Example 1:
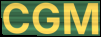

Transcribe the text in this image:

CGM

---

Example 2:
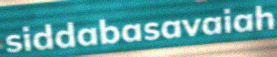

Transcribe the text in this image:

siddabasavaiah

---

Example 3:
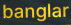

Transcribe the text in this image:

banglar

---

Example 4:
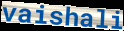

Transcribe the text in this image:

vaishali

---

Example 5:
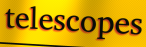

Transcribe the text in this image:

telescopes